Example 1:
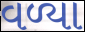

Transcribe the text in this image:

વળ્યા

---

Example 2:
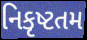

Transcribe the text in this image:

નિકૃષ્ટતમ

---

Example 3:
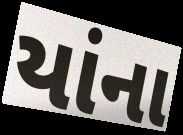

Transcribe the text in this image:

યાંના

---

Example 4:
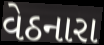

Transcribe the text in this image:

વેઠનારા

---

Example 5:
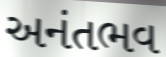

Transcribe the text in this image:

અનંતભવ